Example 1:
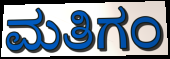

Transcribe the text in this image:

ಮತಿಗಂ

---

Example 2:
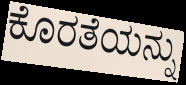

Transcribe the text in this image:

ಕೊರತೆಯನ್ನು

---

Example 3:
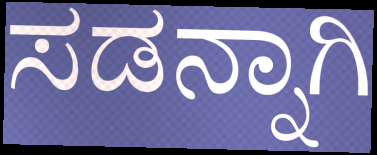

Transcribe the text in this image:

ಸಡನ್ನಾಗಿ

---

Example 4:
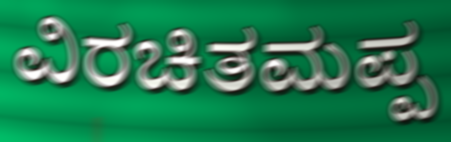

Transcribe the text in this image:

ವಿರಚಿತಮಪ್ಪ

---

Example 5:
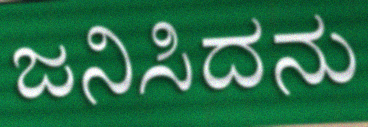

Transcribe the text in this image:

ಜನಿಸಿದನು